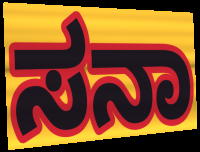
ಸನಾ